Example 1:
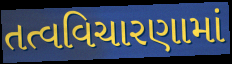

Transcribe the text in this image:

તત્વવિચારણામાં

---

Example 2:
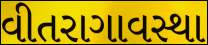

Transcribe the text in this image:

વીતરાગાવસ્થા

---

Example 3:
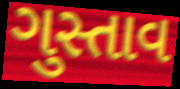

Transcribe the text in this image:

ગુસ્તાવ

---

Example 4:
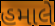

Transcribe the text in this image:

હમાલે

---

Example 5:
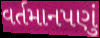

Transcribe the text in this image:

વર્તમાનપણું